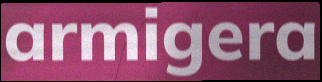
armigera